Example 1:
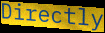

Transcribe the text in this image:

Directly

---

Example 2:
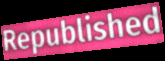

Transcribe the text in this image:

Republished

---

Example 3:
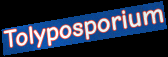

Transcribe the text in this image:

Tolyposporium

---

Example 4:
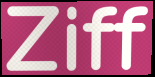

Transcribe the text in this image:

Ziff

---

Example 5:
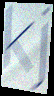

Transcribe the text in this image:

kj